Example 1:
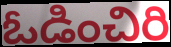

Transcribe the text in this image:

ఓడించిరి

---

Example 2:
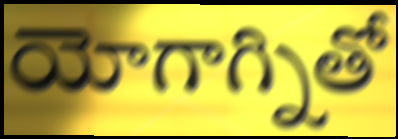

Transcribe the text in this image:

యోగాగ్నితో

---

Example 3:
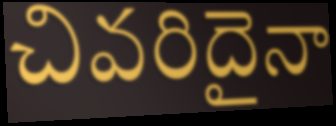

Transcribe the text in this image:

చివరిదైనా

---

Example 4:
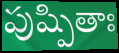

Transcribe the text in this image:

పుష్పితాః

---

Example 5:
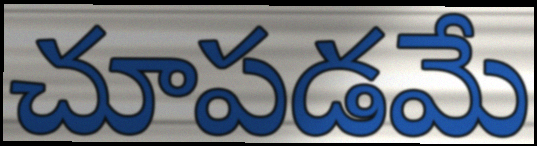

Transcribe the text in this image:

చూపడమే